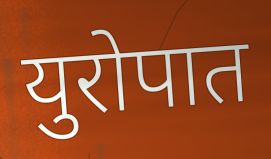
युरोपात